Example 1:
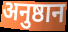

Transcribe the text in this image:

अनुष्ठान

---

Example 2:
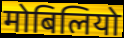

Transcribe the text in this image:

मोबिलियो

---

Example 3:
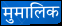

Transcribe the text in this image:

मुमालिक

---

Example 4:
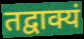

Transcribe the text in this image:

तद्वाक्यं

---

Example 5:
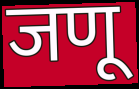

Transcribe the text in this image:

जणू